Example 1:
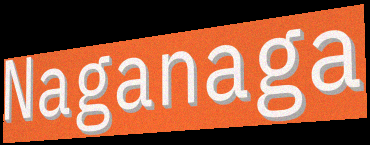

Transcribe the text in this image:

Naganaga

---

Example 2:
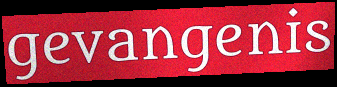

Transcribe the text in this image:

gevangenis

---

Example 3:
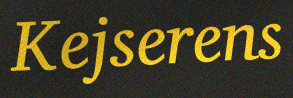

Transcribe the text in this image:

Kejserens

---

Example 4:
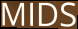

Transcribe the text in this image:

MIDS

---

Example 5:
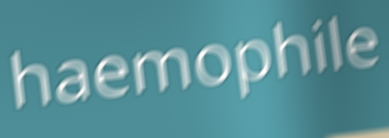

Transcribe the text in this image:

haemophile